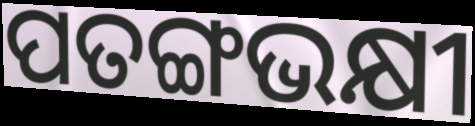
ପତଙ୍ଗଭକ୍ଷୀ